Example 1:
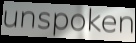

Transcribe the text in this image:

unspoken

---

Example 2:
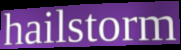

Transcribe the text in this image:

hailstorm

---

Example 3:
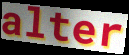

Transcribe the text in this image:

alter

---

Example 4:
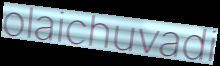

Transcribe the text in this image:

olaichuvadi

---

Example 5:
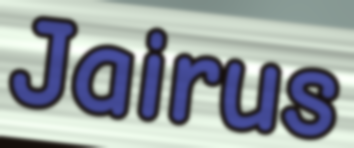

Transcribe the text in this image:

Jairus